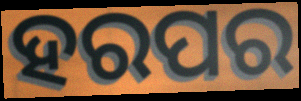
ହରପର